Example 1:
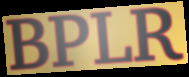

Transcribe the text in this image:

BPLR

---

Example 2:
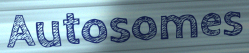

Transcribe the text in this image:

Autosomes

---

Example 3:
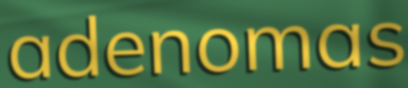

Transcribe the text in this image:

adenomas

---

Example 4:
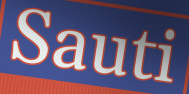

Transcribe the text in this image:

Sauti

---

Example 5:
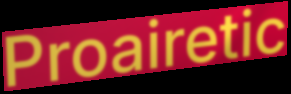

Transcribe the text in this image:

Proairetic